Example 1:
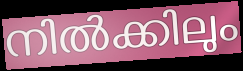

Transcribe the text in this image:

നിൽക്കിലും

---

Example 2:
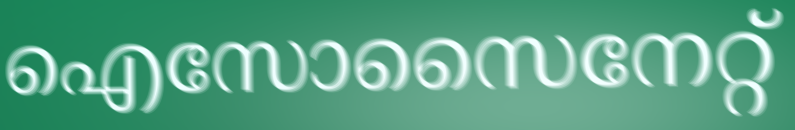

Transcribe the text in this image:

ഐസോസൈനേറ്റ്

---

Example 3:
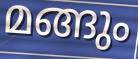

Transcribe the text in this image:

മങ്ങും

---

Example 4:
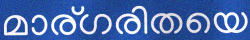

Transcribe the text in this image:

മാര്ഗരിതയെ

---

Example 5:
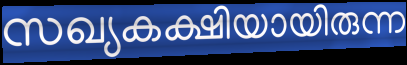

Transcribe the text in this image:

സഖ്യകക്ഷിയായിരുന്ന